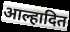
आल्हादित